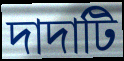
দাদাটি